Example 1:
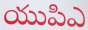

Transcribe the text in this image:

యుపిఎ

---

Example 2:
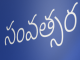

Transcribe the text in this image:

సంవత్సర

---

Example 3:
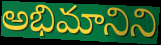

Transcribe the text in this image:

అభిమానిని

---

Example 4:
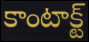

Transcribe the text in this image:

కాంటాక్ట్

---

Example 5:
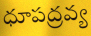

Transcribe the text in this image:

ధూపద్రవ్య